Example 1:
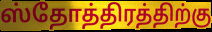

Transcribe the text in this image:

ஸ்தோத்திரத்திற்கு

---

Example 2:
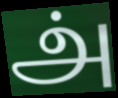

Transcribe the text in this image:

அ்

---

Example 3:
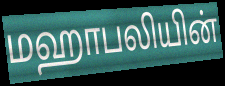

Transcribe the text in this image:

மஹாபலியின்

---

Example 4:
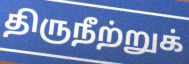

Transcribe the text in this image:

திருநீற்றுக்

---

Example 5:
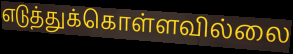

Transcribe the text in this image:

எடுத்துக்கொள்ளவில்லை